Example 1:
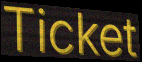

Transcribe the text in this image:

Ticket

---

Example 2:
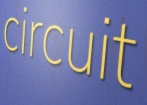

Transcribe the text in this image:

circuit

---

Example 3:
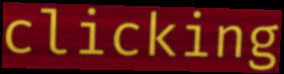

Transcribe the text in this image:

clicking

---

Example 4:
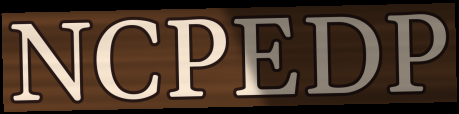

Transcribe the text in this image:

NCPEDP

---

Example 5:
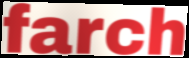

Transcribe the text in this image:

farch